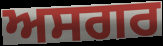
ਅਸਗਰ